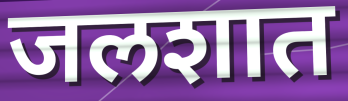
जलशात